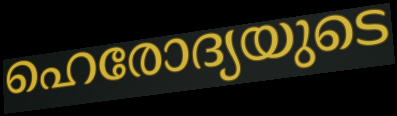
ഹെരോദ്യയുടെ